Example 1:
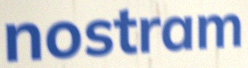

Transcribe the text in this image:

nostram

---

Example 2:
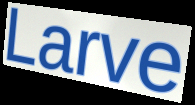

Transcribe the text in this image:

Larve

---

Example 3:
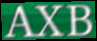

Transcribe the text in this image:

AXB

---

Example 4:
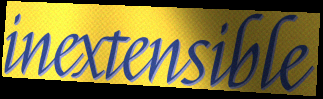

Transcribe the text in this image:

inextensible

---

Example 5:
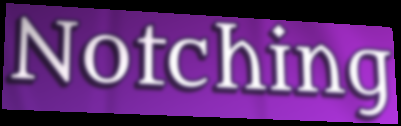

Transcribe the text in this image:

Notching